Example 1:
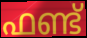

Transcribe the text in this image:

ഫണ്ട്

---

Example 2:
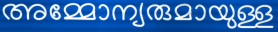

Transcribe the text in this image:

അമ്മോന്യരുമായുള്ള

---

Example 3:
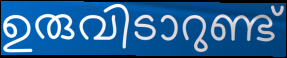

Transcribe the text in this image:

ഉരുവിടാറുണ്ട്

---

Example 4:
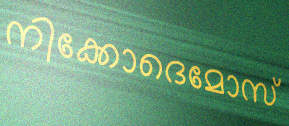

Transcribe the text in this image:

നിക്കോദെമോസ്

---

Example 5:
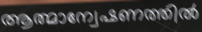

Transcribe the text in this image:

ആത്മാന്വേഷണത്തിൽ